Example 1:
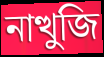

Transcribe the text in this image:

নাত্থুজি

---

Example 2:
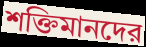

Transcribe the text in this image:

শক্তিমানদের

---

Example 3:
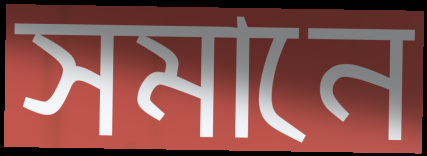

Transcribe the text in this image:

সমানে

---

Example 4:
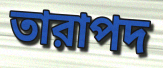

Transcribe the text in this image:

তারাপদ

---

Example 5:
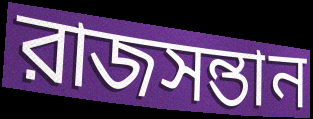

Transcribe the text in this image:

রাজসন্তান